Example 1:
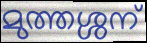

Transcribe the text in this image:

മുത്തശ്ശന്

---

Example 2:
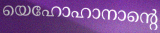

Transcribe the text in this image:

യെഹോഹാനാന്റെ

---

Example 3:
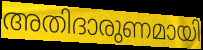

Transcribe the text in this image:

അതിദാരുണമായി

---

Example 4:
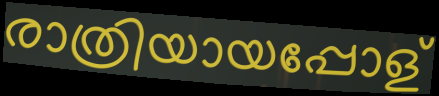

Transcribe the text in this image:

രാത്രിയായപ്പോള്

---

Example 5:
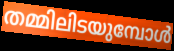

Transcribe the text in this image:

തമ്മിലിടയുമ്പോൾ